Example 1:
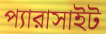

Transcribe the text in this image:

প্যারাসাইট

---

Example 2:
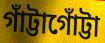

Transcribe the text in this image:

গাঁট্টাগোঁট্টা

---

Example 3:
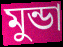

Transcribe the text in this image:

মুন্ডা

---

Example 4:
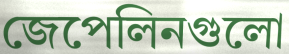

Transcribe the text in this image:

জেপেলিনগুলো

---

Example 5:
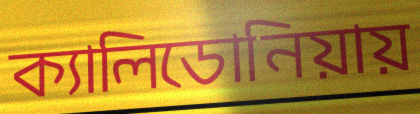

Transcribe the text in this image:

ক্যালিডোনিয়ায়